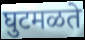
घुटमळते